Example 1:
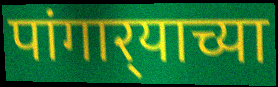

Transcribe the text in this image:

पांगार्‍याच्या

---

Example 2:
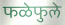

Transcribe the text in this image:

फळेफुले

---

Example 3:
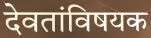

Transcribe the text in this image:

देवतांविषयक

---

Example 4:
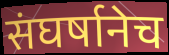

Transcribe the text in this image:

संघर्षानेच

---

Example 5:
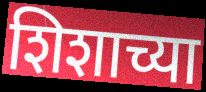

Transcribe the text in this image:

शिशाच्या